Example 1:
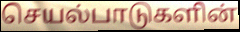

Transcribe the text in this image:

செயல்பாடுகளின்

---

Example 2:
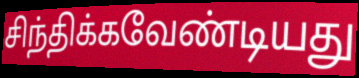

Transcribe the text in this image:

சிந்திக்கவேண்டியது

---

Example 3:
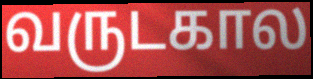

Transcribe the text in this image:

வருடகால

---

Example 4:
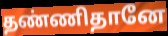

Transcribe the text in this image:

தண்ணிதானே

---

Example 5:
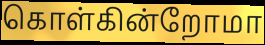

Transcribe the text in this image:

கொள்கின்றோமா